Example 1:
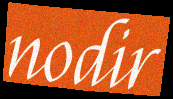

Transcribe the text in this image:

nodir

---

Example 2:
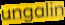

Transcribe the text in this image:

ungalin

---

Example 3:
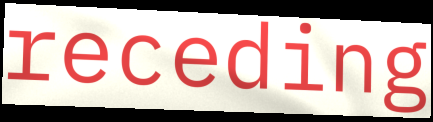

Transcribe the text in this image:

receding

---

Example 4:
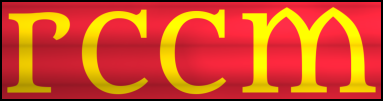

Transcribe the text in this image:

rccm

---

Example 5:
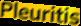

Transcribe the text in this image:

Pleuritis